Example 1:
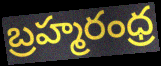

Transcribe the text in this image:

బ్రహ్మరంధ్ర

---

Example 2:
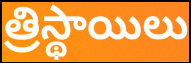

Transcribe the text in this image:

త్రిస్థాయిలు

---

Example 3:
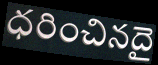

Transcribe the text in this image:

ధరించినదై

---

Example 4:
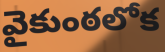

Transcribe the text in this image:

వైకుంఠలోక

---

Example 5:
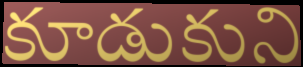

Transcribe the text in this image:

కూడుకుని